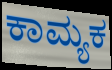
ಕಾಮ್ಯಕ